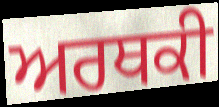
ਅਰਥਕੀ